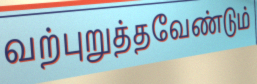
வற்புறுத்தவேண்டும்